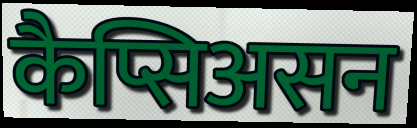
कैप्सिअसन